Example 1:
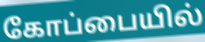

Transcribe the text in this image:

கோப்பையில்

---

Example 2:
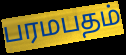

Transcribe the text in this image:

பரமபதம்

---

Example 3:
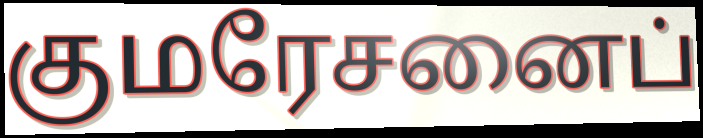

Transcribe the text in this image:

குமரேசனைப்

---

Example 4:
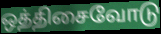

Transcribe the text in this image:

ஒத்திசைவோடு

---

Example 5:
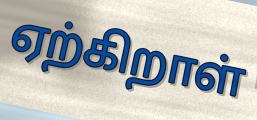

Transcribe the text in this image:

ஏற்கிறாள்